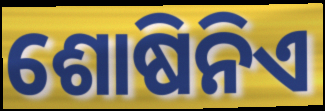
ଶୋଷିନିଏ